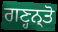
ਗਣ੍ਹਨ੍ਤੋ